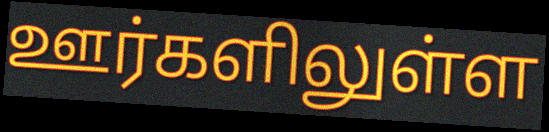
ஊர்களிலுள்ள